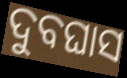
ଦୁବଘାସ